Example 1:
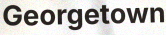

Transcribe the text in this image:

Georgetown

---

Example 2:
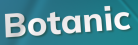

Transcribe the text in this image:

Botanic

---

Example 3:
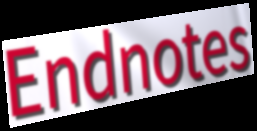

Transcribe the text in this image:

Endnotes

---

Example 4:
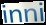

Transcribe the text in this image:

inni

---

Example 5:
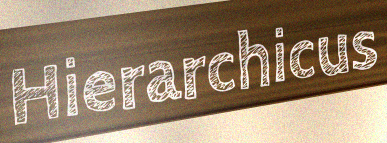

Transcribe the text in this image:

Hierarchicus